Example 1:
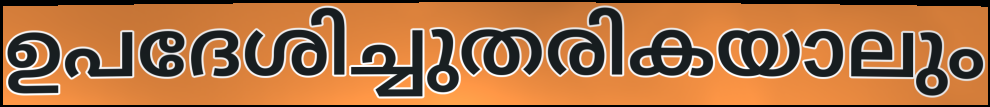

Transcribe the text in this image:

ഉപദേശിച്ചുതരികയാലും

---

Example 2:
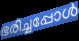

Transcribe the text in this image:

ഭരിച്ചപ്പോൾ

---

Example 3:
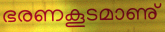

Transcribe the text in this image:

ഭരണകൂടമാണു്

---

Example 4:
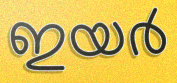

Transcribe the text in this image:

ഇയർ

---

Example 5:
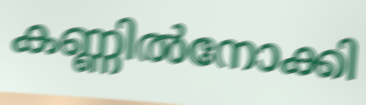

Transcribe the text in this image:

കണ്ണിൽനോക്കി